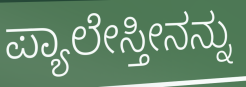
ಪ್ಯಾಲೇಸ್ತೀನನ್ನು